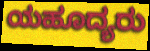
ಯಹೂದ್ಯರು